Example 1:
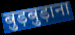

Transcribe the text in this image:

बुड़बुड़ाना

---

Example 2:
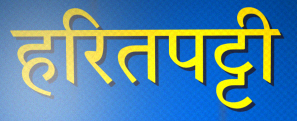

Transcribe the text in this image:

हरितपट्टी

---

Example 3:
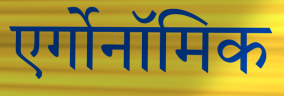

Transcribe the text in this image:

एर्गोनॉमिक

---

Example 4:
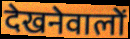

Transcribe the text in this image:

देखनेवालों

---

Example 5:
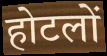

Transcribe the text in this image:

होटलों